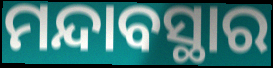
ମନ୍ଦାବସ୍ଥାର